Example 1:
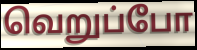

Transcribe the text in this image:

வெறுப்போ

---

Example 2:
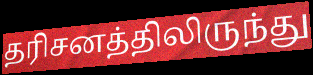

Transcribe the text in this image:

தரிசனத்திலிருந்து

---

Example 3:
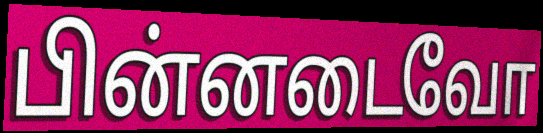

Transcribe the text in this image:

பின்னடைவோ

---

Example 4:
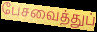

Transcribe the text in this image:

பேசவைத்துப்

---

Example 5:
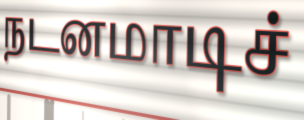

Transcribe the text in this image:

நடனமாடிச்